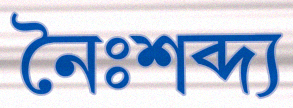
নৈঃশব্দ্য